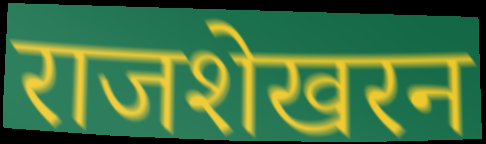
राजशेखरन